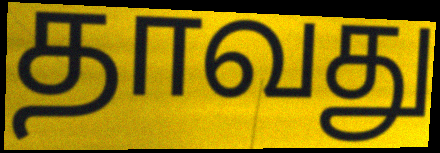
தாவது